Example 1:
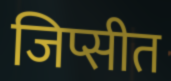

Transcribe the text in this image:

जिप्सीत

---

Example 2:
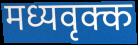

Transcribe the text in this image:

मध्यवृक्क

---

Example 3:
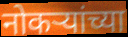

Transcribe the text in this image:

नोकर्‍यांच्या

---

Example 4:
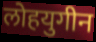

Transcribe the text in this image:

लोहयुगीन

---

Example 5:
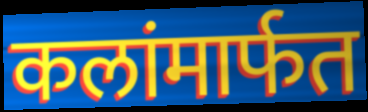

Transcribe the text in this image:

कलांमार्फत